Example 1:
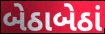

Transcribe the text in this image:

બેઠાબેઠાં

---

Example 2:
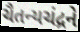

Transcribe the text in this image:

ચૈતન્યચંદ્રને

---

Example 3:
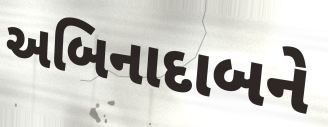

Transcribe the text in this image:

અબિનાદાબને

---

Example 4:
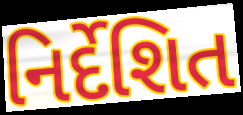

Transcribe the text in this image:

નિર્દેશિત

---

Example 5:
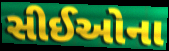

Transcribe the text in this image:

સીઈઓના